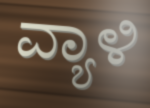
ವ್ಯಾಳಿ